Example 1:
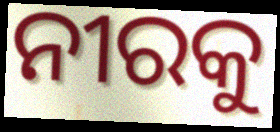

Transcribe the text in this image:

ନୀରକୁ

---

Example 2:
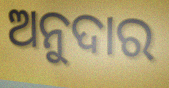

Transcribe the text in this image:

ଅନୁଦାର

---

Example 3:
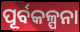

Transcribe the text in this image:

ପୂର୍ବକଳ୍ପନା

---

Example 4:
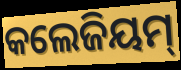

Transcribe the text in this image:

କଲେଜିୟମ୍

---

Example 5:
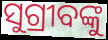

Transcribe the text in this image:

ସୁଗ୍ରୀବଙ୍କୁ